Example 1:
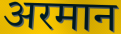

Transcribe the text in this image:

अरमान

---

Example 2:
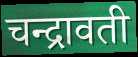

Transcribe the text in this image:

चन्द्रावती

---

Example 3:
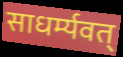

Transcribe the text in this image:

साधर्म्यवत्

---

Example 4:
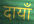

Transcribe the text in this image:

दायाँ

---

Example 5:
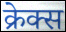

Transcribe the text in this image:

क्रेक्स